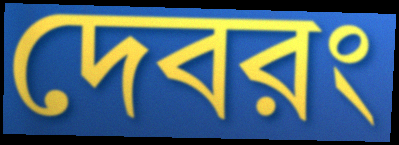
দেবরং